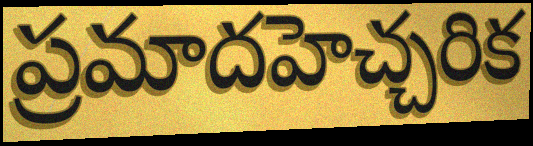
ప్రమాదహెచ్చరిక